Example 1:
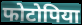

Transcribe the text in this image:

फोटोपिया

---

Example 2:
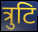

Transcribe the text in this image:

त्रुटि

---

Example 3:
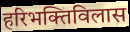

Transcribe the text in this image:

हरिभक्तिविलास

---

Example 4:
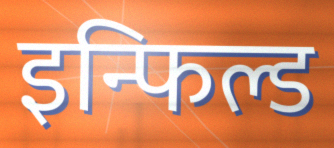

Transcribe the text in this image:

इन्फिल्ड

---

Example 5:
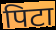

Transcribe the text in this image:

पिटा